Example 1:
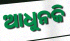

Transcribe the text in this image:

ଆଧୁନକି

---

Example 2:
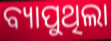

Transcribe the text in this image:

ବ୍ୟାପୁଥିଲା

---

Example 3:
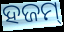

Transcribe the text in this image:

ହଜମ୍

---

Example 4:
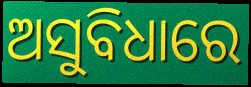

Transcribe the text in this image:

ଅସୁବିଧାରେ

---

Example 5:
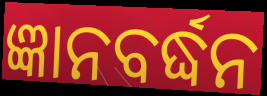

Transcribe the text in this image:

ଜ୍ଞାନବର୍ଦ୍ଧନ